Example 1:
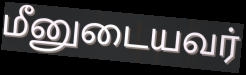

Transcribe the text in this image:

மீனுடையவர்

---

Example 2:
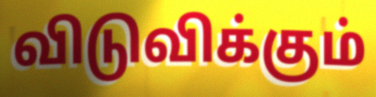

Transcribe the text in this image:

விடுவிக்கும்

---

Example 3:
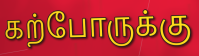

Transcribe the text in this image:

கற்போருக்கு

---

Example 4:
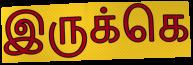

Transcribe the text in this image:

இருக்கெ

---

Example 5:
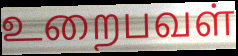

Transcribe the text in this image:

உறைபவள்